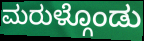
ಮರುಳ್ಗೊಂಡು